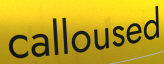
calloused